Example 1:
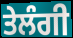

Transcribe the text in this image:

ਤੇਲੰਗੀ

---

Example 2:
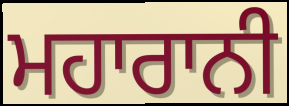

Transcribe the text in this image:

ਮਹਾਰਾਨੀ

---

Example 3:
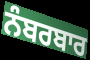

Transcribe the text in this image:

ਨੰਬਰਬਾਰ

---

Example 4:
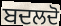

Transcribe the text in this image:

ਬਦਲਦੋ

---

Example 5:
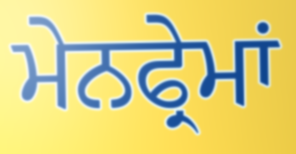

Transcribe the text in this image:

ਮੇਨਫ੍ਰੇਮਾਂ